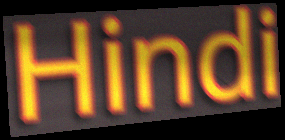
Hindi